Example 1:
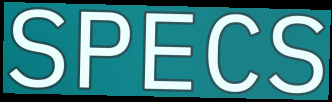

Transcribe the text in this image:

SPECS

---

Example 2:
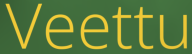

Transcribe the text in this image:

Veettu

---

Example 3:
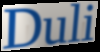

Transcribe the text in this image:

Duli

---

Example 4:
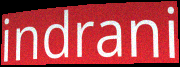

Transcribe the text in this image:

indrani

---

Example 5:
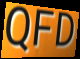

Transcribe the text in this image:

QFD